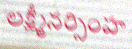
లక్ష్మీనర్సింహ